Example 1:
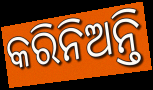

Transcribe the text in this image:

କରିନିଅନ୍ତି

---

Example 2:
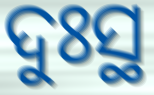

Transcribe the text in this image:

ଦୁଃସ୍ଥ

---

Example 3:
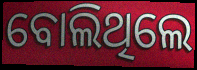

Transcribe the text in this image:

ବୋଲିଥିଲେ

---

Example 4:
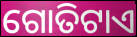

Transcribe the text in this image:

ଗୋତିଟାଏ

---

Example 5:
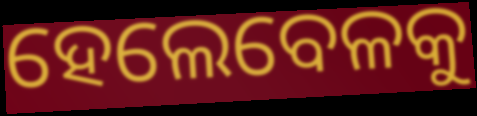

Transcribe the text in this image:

ହେଲେବେଳକୁ